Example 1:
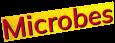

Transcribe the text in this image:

Microbes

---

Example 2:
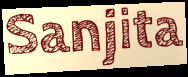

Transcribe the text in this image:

Sanjita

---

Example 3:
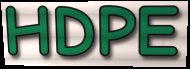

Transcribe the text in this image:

HDPE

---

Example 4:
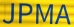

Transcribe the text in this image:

JPMA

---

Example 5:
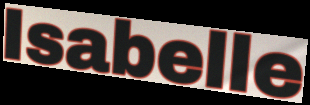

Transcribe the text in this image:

Isabelle